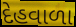
દેહવાળા